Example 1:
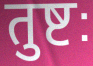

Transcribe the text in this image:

तुष्टः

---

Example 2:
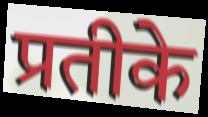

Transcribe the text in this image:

प्रतीके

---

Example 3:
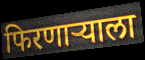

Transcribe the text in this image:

फिरणाऱ्याला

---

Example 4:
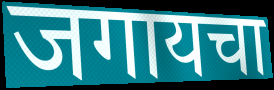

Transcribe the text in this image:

जगायचा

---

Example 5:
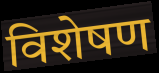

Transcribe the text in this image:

विशेषण